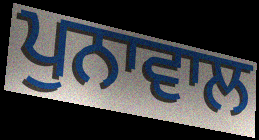
ਪੁਨਾਵਾਲ